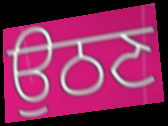
ਉਠਣ